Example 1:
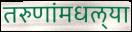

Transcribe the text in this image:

तरुणांमधल्या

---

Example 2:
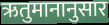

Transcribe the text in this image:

ऋतुमानानुसार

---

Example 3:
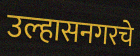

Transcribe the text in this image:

उल्हासनगरचे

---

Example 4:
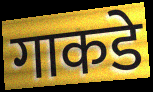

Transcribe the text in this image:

गाकडे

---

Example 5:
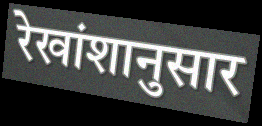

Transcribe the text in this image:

रेखांशानुसार